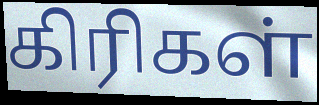
கிரிகள்